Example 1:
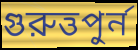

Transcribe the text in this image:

গুৰুত্তপুৰ্ন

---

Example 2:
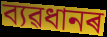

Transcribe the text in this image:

ব্যৱধানৰ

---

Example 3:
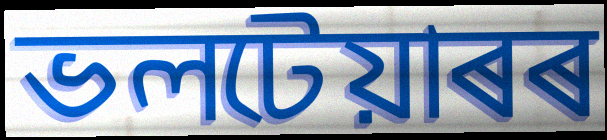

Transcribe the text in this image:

ভলটেয়াৰৰ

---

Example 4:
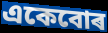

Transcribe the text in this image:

একেবোৰ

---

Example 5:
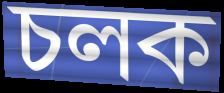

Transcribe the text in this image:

চলক